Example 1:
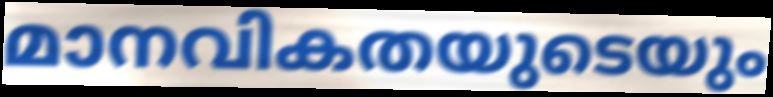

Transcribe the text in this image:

മാനവികതയുടെയും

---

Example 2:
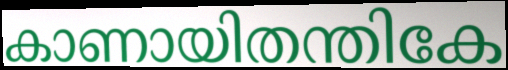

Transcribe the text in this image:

കാണായിതന്തികേ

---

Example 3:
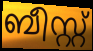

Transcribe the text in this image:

ബീസ്റ്റ്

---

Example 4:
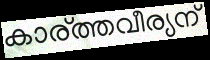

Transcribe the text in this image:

കാര്ത്തവീര്യന്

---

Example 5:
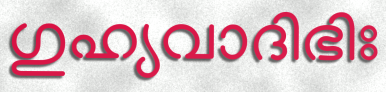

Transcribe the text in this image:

ഗുഹ്യവാദിഭിഃ